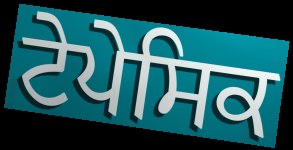
ਟੇਪੇਸਿਕ